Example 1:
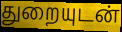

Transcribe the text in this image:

துறையுடன்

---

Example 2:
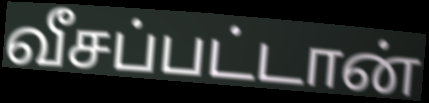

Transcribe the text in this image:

வீசப்பட்டான்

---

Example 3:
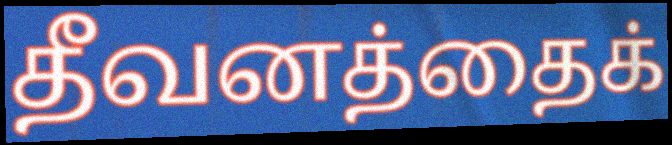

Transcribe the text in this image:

தீவனத்தைக்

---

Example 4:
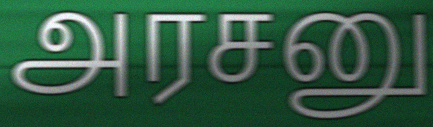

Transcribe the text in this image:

அரசனு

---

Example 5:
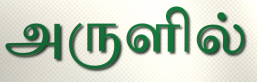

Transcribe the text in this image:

அருளில்